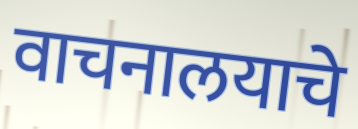
वाचनालयाचे